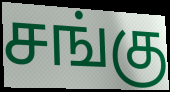
சங்கு